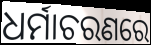
ଧର୍ମାଚରଣରେ